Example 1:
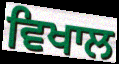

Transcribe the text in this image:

ਵਿਖਾਲ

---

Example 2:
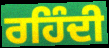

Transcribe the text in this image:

ਰਹਿੰਦੀ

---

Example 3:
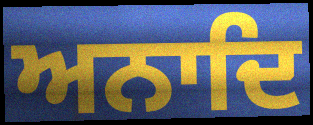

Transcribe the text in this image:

ਅਨਾਦਿ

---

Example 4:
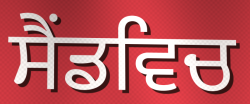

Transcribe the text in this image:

ਸੈਂਡਵਿਚ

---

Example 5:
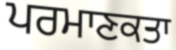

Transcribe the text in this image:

ਪਰਮਾਣਕਤਾ